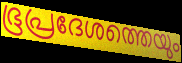
ഭൂപ്രദേശത്തെയും